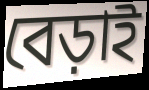
বেড়াই